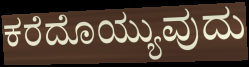
ಕರೆದೊಯ್ಯುವುದು